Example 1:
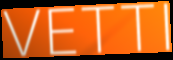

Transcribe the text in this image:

VETTI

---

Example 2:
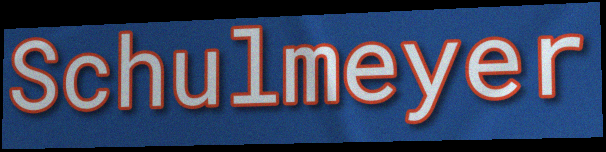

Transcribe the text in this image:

Schulmeyer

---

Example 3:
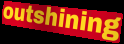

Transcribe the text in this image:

outshining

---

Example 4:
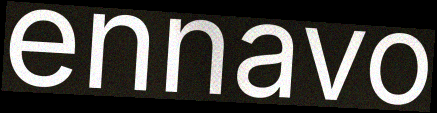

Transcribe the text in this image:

ennavo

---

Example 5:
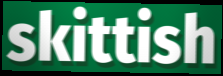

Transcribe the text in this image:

skittish